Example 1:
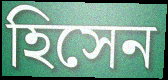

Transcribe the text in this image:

হিসেন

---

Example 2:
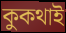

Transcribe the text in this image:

কুকথাই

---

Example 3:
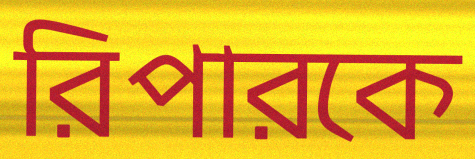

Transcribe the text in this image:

রিপারকে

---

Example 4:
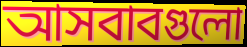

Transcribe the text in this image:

আসবাবগুলো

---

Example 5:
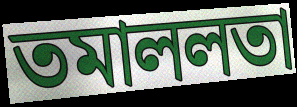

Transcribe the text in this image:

তমাললতা